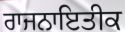
ਰਾਜਨਾਇਤੀਕ